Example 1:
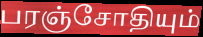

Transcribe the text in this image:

பரஞ்சோதியும்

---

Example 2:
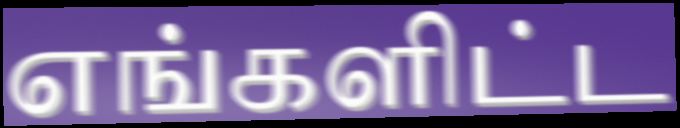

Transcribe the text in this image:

எங்களிட்ட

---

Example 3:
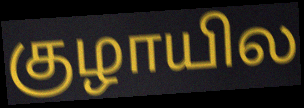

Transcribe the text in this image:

குழாயில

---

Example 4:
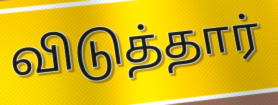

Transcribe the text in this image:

விடுத்தார்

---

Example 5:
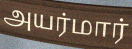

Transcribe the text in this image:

அயர்மார்